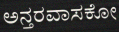
ಅನ್ತರವಾಸಕೋ